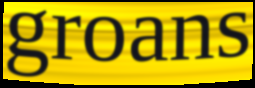
groans